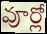
వూర్లో